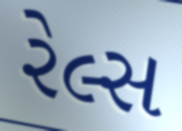
રેલ્સ